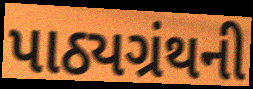
પાઠ્યગ્રંથની